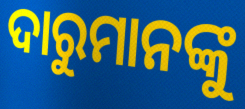
ଦାରୁମାନଙ୍କୁ